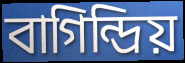
বাগিন্দ্ৰিয়